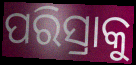
ପରିସ୍ରାକୁ